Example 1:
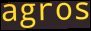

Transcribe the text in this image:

agros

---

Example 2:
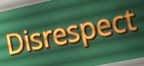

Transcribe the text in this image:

Disrespect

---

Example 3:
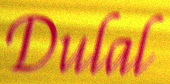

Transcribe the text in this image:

Dulal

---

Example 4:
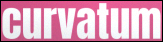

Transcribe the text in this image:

curvatum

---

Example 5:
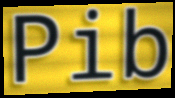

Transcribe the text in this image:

Pib